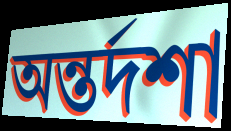
অন্তর্দশা